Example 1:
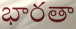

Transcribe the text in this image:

భారతా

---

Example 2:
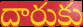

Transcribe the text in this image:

దారుకు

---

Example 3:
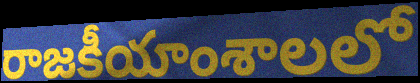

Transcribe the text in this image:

రాజకీయాంశాలలో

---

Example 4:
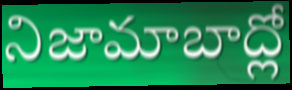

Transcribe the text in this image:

నిజామాబాద్లో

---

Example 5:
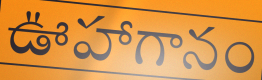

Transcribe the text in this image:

ఊహాగానం